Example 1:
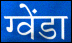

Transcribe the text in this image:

ग्वेंडा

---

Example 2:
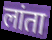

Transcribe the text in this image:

लांता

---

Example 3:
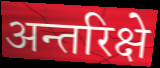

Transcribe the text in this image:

अन्तरिक्षे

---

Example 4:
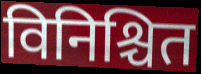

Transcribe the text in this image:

विनिश्चित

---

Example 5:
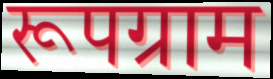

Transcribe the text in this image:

रूपग्राम